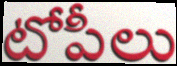
టోపీలు